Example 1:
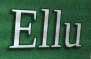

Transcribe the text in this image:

Ellu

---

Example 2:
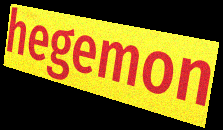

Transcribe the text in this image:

hegemon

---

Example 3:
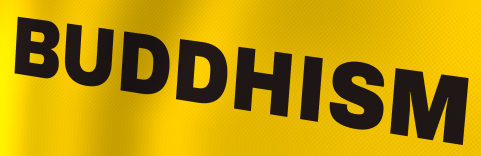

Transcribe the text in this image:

BUDDHISM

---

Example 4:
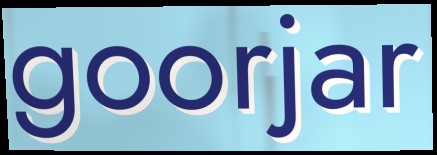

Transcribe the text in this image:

goorjar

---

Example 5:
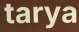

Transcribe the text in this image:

tarya